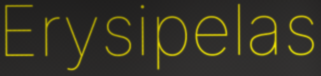
Erysipelas